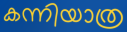
കന്നിയാത്ര